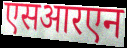
एसआरएन